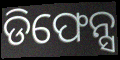
ଡିଫେନ୍ସ